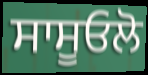
ਸਾਸੂਓਲੋ